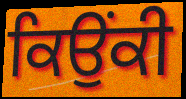
ਕਿਉਂਕੀ